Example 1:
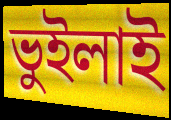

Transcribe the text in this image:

ভুইলাই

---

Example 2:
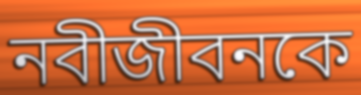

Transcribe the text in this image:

নবীজীবনকে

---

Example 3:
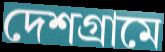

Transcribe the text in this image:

দেশগ্রামে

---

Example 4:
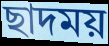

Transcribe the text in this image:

ছাদময়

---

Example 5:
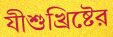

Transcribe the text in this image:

যীশুখ্রিষ্টের